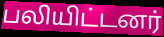
பலியிட்டனர்